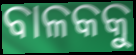
ବାଳକକୁ